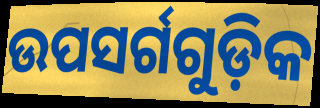
ଉପସର୍ଗଗୁଡ଼ିକ